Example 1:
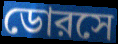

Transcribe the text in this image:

ডোরসে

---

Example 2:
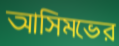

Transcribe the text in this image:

আসিমভের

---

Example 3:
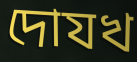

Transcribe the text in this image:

দোযখ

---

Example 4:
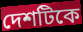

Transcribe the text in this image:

দেশটিকে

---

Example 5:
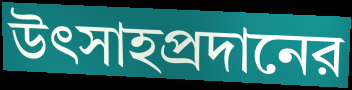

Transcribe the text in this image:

উৎসাহপ্রদানের